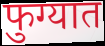
फुग्यात